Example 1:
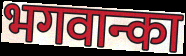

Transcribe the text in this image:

भगवान्का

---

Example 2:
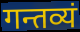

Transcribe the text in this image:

गन्तव्यं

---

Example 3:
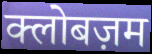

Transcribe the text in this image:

क्लोबज़म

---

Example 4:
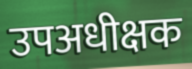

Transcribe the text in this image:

उपअधीक्षक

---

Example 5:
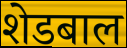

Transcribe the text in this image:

शेडबाल